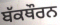
ਬੱਕਥੌਰਨ